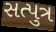
સત્પુત્ર